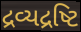
દ્રવ્યદ્રષ્ટિ